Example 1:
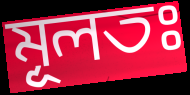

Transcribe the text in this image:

মূলতঃ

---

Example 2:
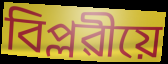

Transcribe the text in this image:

বিপ্লৱীয়ে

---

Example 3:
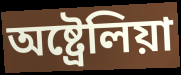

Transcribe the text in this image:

অষ্ট্ৰেলিয়া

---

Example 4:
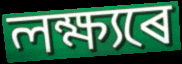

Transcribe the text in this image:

লক্ষ্যৰে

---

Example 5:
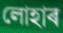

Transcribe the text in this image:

লোহাৰ